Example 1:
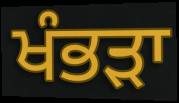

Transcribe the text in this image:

ਖੰਭੜਾ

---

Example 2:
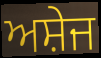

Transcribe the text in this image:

ਅਸ਼ੇਜ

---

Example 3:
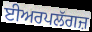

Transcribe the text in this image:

ਈਅਰਪਲੱਗਜ਼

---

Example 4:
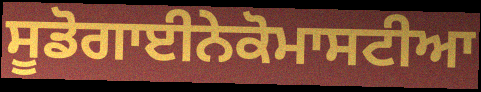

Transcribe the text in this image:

ਸੂਡੋਗਾਈਨੇਕੋਮਾਸਟੀਆ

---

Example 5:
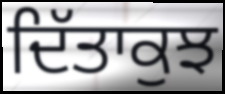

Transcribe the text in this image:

ਦਿੱਤਾਕੁਝ